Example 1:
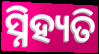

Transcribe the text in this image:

ସ୍ନିହ୍ୟତି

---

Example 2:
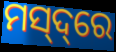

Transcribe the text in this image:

ମସ୍‌ଦ୍‌ରେ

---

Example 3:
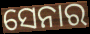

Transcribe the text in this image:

ସେନାର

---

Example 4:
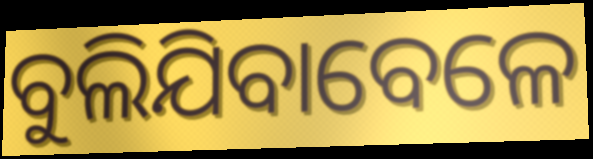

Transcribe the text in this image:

ବୁଲିଯିବାବେଳେ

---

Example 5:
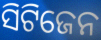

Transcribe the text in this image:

ସିଟିଜେନ